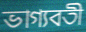
ভাগ্যবতী